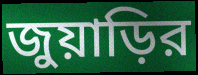
জুয়াড়ির